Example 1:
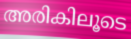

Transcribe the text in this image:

അരികിലൂടെ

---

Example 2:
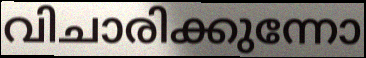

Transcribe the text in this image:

വിചാരിക്കുന്നോ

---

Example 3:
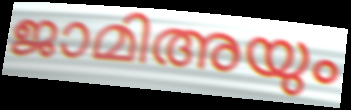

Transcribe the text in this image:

ജാമിഅയും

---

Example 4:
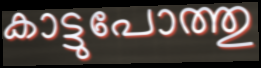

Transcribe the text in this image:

കാട്ടുപോത്തു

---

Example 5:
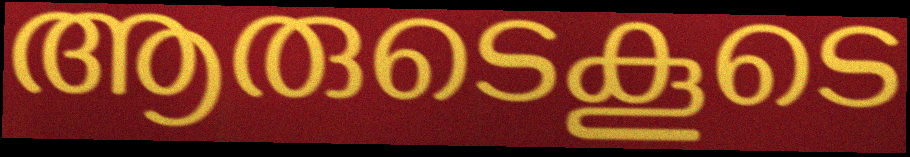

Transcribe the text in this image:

ആരുടെകൂടെ